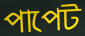
পাপেট